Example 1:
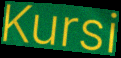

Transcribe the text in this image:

Kursi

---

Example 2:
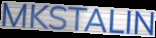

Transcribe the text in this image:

MKSTALIN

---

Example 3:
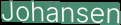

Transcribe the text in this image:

Johansen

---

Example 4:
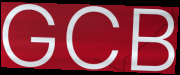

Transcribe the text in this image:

GCB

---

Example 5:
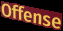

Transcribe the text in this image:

Offense